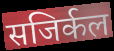
सजिर्कल